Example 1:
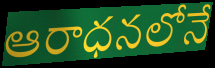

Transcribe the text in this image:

ఆరాధనలోనే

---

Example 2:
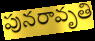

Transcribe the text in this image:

పునరావృతి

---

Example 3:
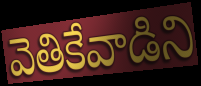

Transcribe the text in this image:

వెతికేవాడిని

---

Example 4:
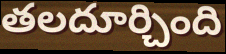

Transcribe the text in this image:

తలదూర్చింది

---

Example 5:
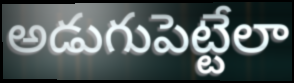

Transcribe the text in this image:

అడుగుపెట్టేలా